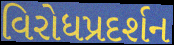
વિરોધપ્રદર્શન